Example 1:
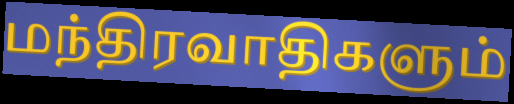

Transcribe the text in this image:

மந்திரவாதிகளும்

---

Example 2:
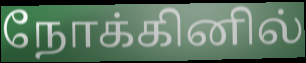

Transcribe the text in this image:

நோக்கினில்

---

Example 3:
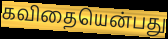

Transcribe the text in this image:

கவிதையென்பது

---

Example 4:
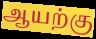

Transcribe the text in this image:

ஆயற்கு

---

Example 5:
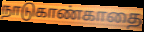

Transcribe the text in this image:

நாடுகாண்காதை